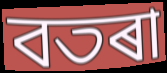
বতৰা